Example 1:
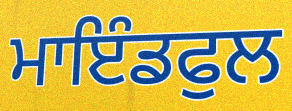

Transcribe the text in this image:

ਮਾਇੰਡਫੁਲ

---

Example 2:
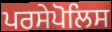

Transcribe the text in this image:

ਪਰਸੇਪੋਲਿਸ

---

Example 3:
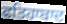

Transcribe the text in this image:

ਫਤਿਹਾਬਾਦ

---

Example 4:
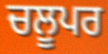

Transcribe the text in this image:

ਚਲੂਪਰ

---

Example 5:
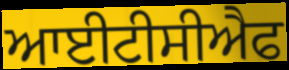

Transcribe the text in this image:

ਆਈਟੀਸੀਐਫ